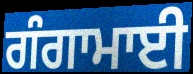
ਗੰਗਾਮਾਈ